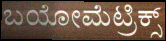
ಬಯೋಮೆಟ್ರಿಕ್ಸ್